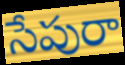
సేపురా